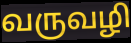
வருவழி